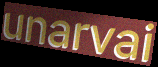
unarvai